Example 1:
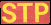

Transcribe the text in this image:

STP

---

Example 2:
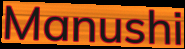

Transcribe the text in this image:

Manushi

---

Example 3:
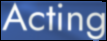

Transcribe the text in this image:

Acting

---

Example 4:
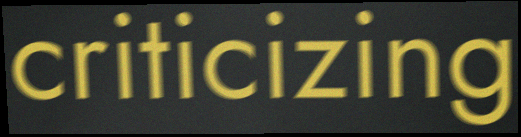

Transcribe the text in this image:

criticizing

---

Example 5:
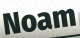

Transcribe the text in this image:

Noam